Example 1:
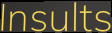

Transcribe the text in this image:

Insults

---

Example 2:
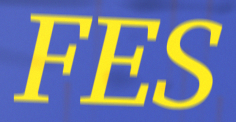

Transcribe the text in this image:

FES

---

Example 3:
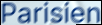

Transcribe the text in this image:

Parisien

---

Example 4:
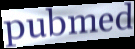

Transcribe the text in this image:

pubmed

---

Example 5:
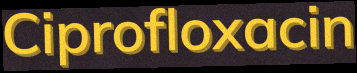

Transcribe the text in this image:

Ciprofloxacin